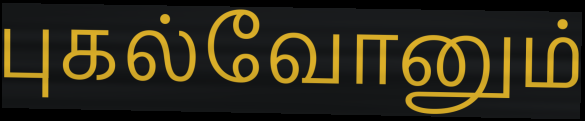
புகல்வோனும்